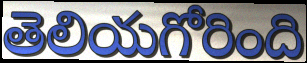
తెలియగోరింది